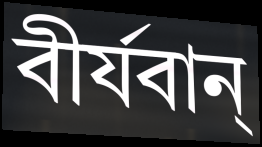
বীর্যবান্